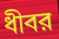
ধীবর